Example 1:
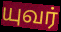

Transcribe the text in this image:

யுவர்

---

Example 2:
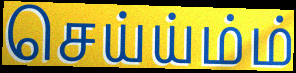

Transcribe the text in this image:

செய்ய்ம்ம்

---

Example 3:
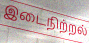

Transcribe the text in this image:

இடைநிற்றல்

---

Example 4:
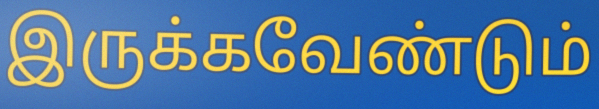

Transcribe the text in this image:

இருக்கவேண்டும்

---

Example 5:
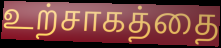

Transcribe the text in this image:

உற்சாகத்தை